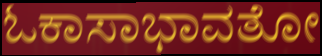
ಓಕಾಸಾಭಾವತೋ